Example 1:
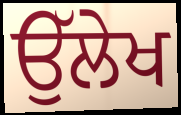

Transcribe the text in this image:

ਉੱਲੇਖ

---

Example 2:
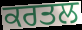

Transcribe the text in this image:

ਕਰਤਲ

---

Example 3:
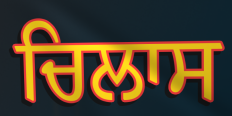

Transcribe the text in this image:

ਚਿਲਾਸ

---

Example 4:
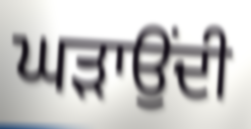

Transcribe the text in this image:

ਘੜਾਉਂਦੀ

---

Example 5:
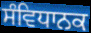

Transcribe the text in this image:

ਸੰਵਿਧਾਨਕ